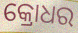
କ୍ରୋଧର